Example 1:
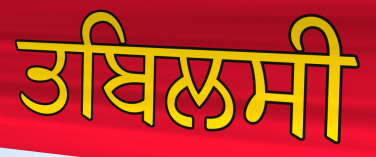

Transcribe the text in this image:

ਤਬਿਲਸੀ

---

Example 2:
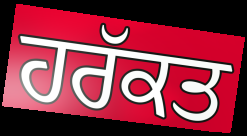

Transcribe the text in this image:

ਹਰੱਕਤ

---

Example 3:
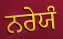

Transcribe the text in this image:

ਨਰੇਯੰ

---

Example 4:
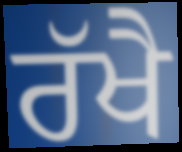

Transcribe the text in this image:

ਰੱਖੈ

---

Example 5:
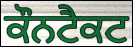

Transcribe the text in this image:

ਕੌਨਟੈਕਟ